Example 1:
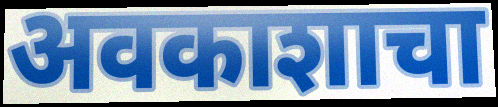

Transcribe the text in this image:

अवकाशाचा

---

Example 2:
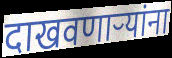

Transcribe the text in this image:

दाखवणाऱ्यांना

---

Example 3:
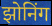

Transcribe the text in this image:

झोनिंग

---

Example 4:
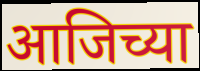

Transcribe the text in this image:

आजिच्या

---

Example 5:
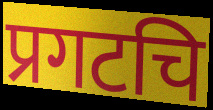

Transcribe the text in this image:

प्रगटचि